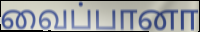
வைப்பானா